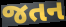
જતન